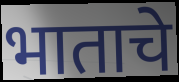
भाताचे